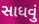
સાધવું